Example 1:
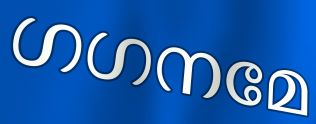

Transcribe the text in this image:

ഗഗനമേ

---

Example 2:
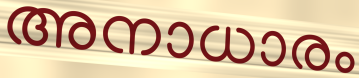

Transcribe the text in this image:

അനാധാരം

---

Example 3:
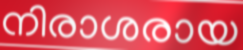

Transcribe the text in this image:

നിരാശരായ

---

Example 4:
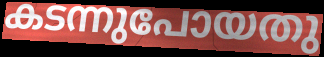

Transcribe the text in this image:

കടന്നുപോയതു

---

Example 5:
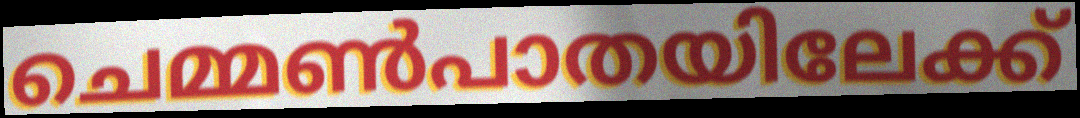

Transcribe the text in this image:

ചെമ്മൺപാതയിലേക്ക്